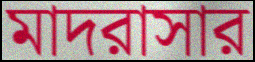
মাদরাসার